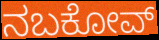
ನಬಕೋವ್